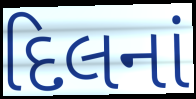
દિલનાં